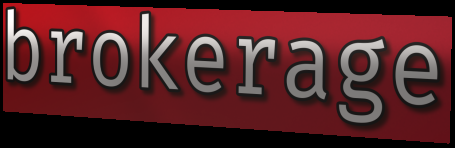
brokerage